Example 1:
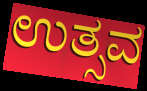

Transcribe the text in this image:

ಉತ್ಸವ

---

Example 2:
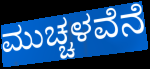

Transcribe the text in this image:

ಮುಚ್ಚಳವೆನೆ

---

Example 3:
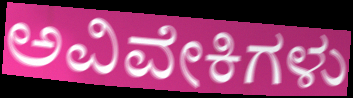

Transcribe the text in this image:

ಅವಿವೇಕಿಗಳು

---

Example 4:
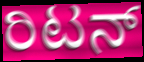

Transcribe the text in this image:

ರಿಟನ್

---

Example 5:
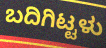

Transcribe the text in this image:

ಬದಿಗಿಟ್ಟಳು